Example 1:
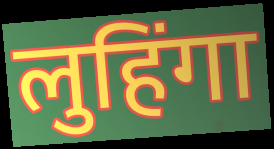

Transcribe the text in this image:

लुहिंगा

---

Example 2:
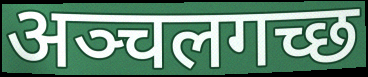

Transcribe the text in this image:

अञ्चलगच्छ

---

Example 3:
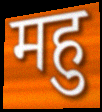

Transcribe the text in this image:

महु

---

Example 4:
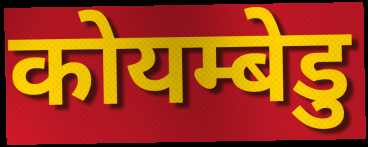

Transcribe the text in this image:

कोयम्बेडु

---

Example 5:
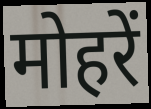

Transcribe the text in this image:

मोहरें